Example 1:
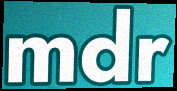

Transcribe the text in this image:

mdr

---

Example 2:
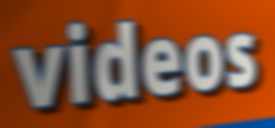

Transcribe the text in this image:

videos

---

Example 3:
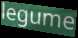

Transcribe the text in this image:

legume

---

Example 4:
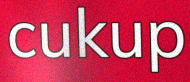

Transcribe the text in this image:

cukup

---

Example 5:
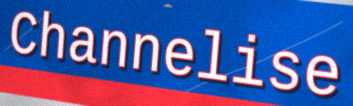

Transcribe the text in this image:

Channelise